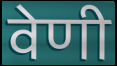
वेणी